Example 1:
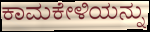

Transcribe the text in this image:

ಕಾಮಕೇಳಿಯನ್ನು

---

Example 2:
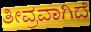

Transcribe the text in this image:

ತೀವ್ರವಾಗಿದೆ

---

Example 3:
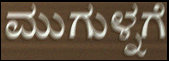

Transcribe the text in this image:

ಮುಗುಳ್ನಗೆ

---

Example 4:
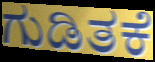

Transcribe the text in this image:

ಗುಡಿತಕೆ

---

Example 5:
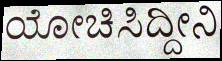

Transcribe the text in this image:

ಯೋಚಿಸಿದ್ದೀನಿ